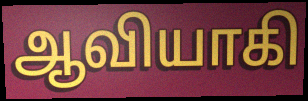
ஆவியாகி